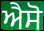
ਐਸੋ